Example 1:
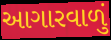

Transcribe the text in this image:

આગારવાળું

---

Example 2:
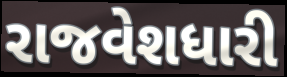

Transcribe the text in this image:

રાજવેશધારી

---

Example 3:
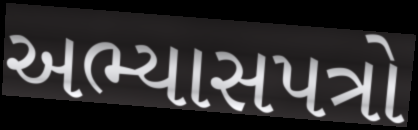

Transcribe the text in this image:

અભ્યાસપત્રો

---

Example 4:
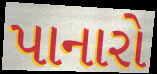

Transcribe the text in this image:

પાનારો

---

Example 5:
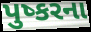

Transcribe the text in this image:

પુષ્કરના